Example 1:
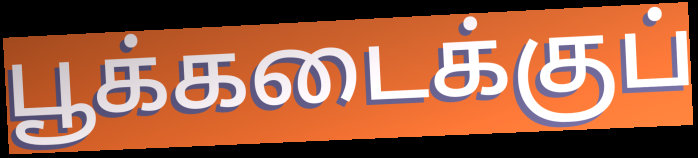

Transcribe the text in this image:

பூக்கடைக்குப்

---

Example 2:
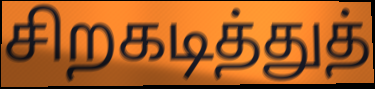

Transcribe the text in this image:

சிறகடித்துத்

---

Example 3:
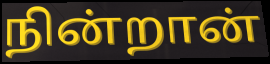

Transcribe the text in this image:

நின்றான்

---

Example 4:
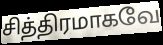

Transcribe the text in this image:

சித்திரமாகவே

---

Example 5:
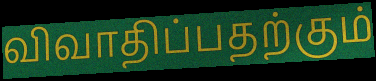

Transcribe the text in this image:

விவாதிப்பதற்கும்